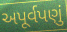
અપૂર્વપણું